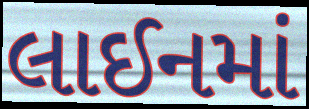
લાઈનમાં